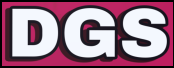
DGS